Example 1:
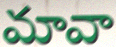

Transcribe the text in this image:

మావా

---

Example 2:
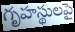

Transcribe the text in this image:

గృహస్థులపై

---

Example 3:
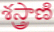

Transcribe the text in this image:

శస్త్రాణి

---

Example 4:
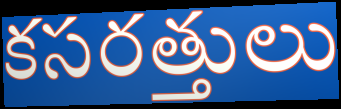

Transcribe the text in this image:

కసరత్తులు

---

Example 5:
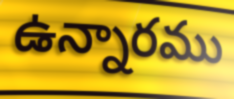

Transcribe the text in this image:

ఉన్నారము